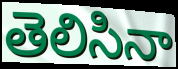
తెలిసినా